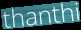
thanthi